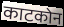
काटकोन